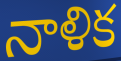
నాళిక